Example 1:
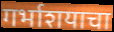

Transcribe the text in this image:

गर्भाशयाचा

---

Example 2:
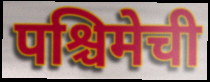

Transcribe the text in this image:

पश्चिमेची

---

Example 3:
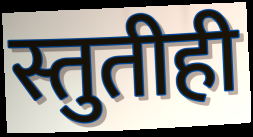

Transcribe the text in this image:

स्तुतीही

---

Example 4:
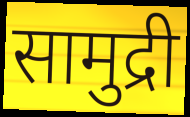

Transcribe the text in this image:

सामुद्री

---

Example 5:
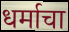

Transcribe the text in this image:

धर्माचा